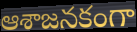
ఆశాజనకంగా